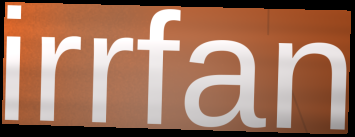
irrfan